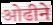
ओढीने